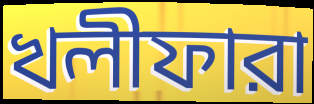
খলীফারা